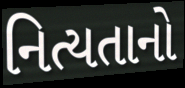
નિત્યતાનો